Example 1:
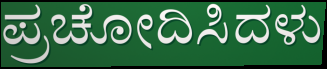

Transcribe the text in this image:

ಪ್ರಚೋದಿಸಿದಳು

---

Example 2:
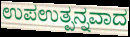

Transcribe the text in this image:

ಉಪಉತ್ಪನ್ನವಾದ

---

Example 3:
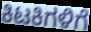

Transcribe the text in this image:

ಕಿಟಕಿಗಳಿಗೆ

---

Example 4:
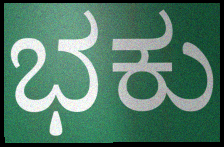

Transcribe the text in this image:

ಭಕು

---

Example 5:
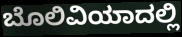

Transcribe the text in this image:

ಬೊಲಿವಿಯಾದಲ್ಲಿ